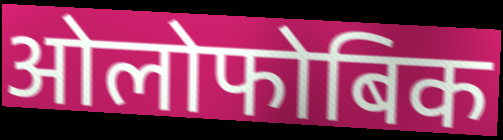
ओलोफोबिक